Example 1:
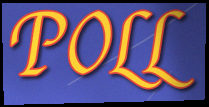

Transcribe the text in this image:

POLL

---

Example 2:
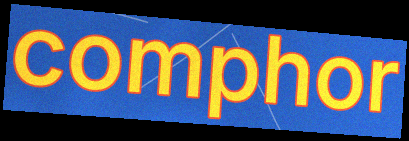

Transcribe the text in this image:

comphor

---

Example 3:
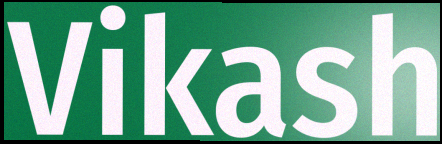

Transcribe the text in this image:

Vikash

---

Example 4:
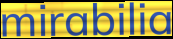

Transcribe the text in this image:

mirabilia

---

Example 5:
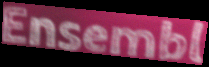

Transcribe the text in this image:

Ensembl